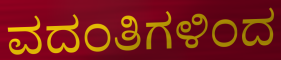
ವದಂತಿಗಳಿಂದ